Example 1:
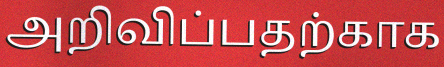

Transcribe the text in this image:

அறிவிப்பதற்காக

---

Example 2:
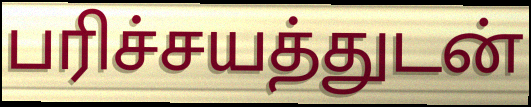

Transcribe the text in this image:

பரிச்சயத்துடன்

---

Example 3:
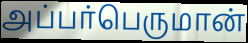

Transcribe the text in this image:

அப்பர்பெருமான்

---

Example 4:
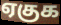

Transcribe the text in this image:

ஏகுக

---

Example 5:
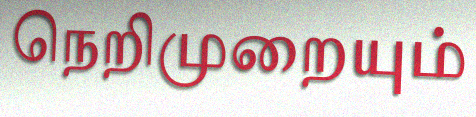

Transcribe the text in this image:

நெறிமுறையும்